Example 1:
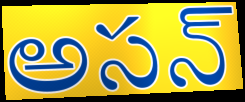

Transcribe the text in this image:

అసన్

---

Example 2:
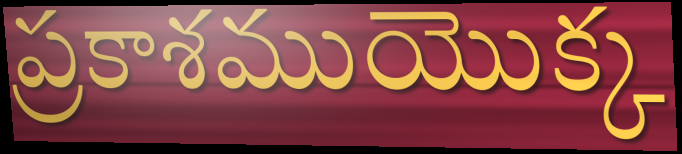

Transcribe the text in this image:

ప్రకాశముయొక్క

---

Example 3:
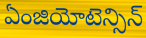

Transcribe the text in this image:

ఏంజియోటెన్సిన్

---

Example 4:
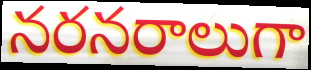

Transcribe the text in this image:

నరనరాలుగా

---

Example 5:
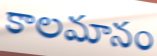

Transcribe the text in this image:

కాలమానం